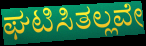
ಘಟಿಸಿತಲ್ಲವೇ